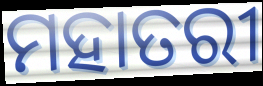
ମହାତରୀ